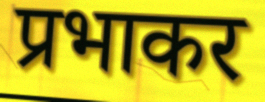
प्रभाकर